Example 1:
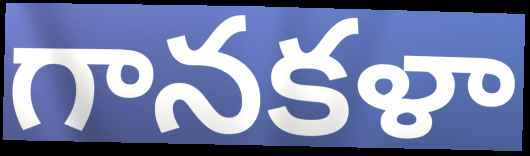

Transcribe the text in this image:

గానకళా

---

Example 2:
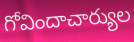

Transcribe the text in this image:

గోవిందాచార్యుల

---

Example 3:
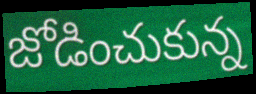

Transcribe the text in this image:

జోడించుకున్న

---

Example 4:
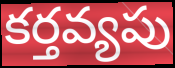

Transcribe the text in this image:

కర్తవ్యపు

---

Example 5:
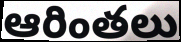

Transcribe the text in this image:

ఆరింతలు